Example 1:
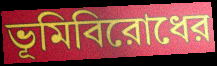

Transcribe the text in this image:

ভূমিবিরোধের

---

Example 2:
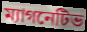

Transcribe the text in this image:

ম্যাগনেটিভ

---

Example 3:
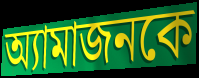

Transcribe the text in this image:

অ্যামাজনকে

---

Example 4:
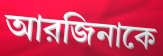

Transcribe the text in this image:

আরজিনাকে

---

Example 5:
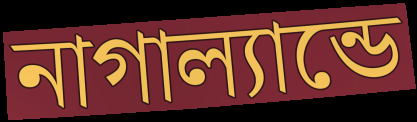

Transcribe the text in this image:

নাগাল্যান্ডে